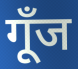
गूँज